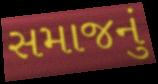
સમાજનું